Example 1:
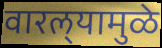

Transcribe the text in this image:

वारल्यामुळे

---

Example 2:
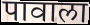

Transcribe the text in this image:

पावाला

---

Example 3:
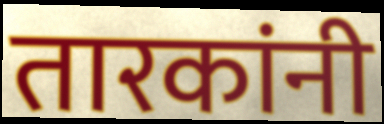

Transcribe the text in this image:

तारकांनी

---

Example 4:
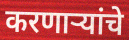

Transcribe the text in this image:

करणाऱ्यांचे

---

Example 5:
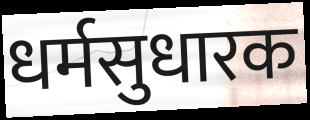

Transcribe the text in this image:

धर्मसुधारक